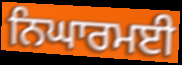
ਨਿਘਾਰਮਈ